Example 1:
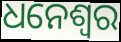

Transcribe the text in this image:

ଧନେଶ୍ବର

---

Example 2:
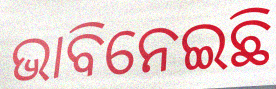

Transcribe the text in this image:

ଭାବିନେଇଛି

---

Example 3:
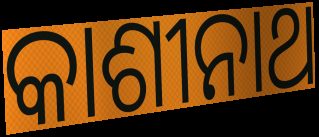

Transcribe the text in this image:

କାଶୀନାଥ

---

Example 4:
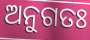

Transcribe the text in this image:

ଅନୁଗତଃ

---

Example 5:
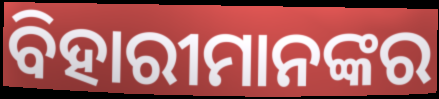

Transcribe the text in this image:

ବିହାରୀମାନଙ୍କର